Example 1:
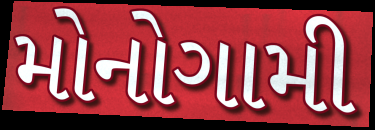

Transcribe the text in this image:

મોનોગામી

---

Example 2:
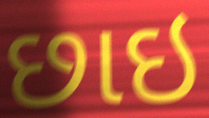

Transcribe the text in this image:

છાઇ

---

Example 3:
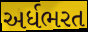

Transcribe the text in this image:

અર્ધભરત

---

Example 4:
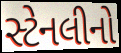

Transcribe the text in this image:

સ્ટેનલીનો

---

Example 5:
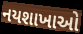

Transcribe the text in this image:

નયશાખાઓ